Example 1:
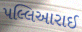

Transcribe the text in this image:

પલ્લિઆરાઈ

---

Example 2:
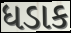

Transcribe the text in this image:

ધડાક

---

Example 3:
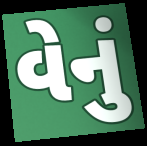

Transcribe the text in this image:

વેનું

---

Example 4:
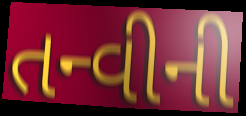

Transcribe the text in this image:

તન્વીની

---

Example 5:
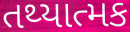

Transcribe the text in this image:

તથ્યાત્મક